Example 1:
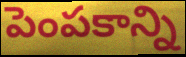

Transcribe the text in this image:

పెంపకాన్ని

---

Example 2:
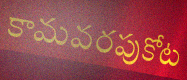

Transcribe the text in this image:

కామవరపుకోట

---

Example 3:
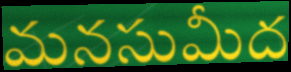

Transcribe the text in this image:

మనసుమీద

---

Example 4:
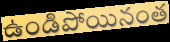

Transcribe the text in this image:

ఉండిపోయినంత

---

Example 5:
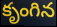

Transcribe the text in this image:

కృంగిన